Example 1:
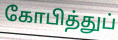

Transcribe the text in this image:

கோபித்துப்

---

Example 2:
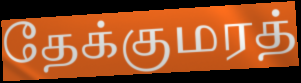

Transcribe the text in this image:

தேக்குமரத்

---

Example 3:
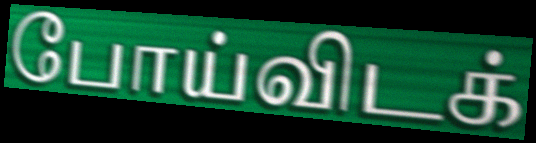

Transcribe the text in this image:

போய்விடக்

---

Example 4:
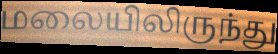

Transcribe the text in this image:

மலையிலிருந்து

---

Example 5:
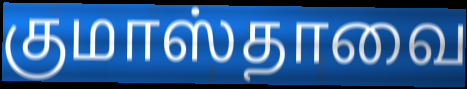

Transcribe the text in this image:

குமாஸ்தாவை